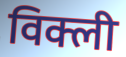
विक्ली